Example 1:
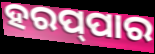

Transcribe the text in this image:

ହରପ୍‌ପାର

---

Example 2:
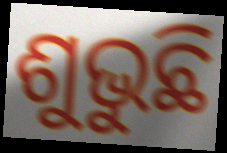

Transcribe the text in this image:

ଶୁଭୁଛି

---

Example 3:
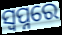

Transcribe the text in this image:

ସ୍ୱପ୍ନରେ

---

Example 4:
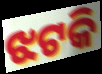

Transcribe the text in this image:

ଝଟକି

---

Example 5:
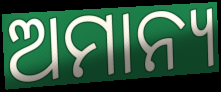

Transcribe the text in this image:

ଅମାନ୍ୟ